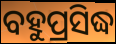
ବହୁପ୍ରସିଦ୍ଧ